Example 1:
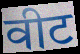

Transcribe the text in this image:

वीट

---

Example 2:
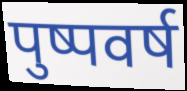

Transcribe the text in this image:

पुष्पवर्ष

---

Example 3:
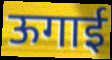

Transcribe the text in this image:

ऊगाई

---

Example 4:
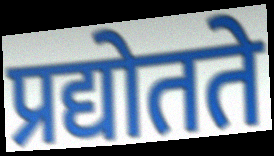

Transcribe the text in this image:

प्रद्योतते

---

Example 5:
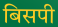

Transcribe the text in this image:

बिसपी